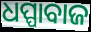
ଧପ୍ପାବାଜ